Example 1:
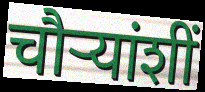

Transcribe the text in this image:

चौर्‍यांशीं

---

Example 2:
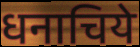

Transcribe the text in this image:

धनाचिये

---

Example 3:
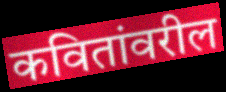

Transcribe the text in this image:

कवितांवरील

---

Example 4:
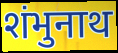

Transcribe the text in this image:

शंभुनाथ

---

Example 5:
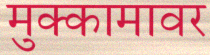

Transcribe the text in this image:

मुक्कामावर